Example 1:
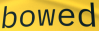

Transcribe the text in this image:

bowed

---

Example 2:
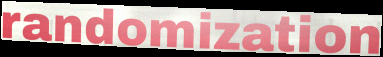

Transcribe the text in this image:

randomization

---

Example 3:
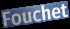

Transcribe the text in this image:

Fouchet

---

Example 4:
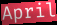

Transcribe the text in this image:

April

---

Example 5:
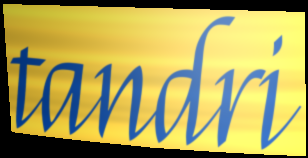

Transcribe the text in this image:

tandri